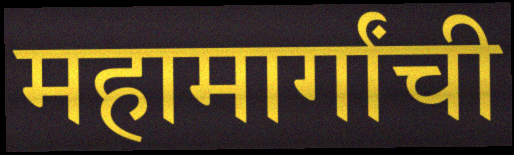
महामार्गांची